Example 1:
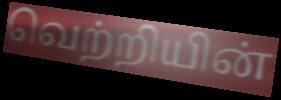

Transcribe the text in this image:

வெற்றியின்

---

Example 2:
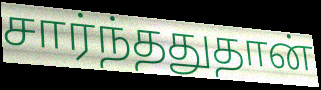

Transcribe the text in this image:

சார்ந்ததுதான்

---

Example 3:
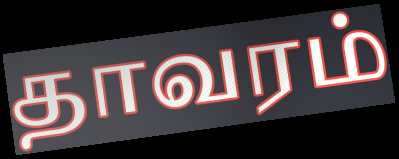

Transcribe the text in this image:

தாவரம்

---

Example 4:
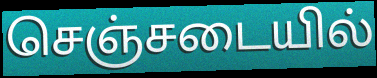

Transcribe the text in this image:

செஞ்சடையில்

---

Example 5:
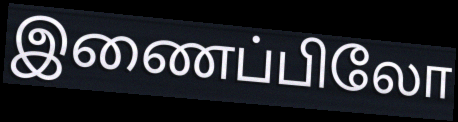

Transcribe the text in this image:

இணைப்பிலோ